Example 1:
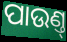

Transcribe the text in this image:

ପାଉଣ୍ତ୍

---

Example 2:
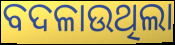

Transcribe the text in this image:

ବଦଳାଉଥିଲା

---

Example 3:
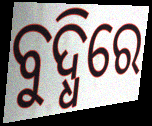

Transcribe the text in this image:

ବୁଦ୍ଧିରେ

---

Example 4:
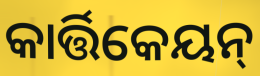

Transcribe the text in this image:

କାର୍ତ୍ତିକେୟନ୍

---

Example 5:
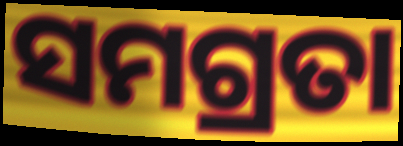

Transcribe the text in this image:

ସମଗ୍ରତା